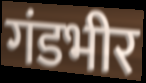
गंडभीर